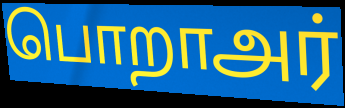
பொறாஅர்